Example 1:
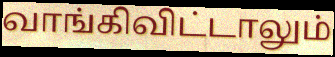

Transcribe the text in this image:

வாங்கிவிட்டாலும்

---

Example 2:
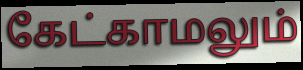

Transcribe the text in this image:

கேட்காமலும்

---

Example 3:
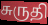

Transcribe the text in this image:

சுருதி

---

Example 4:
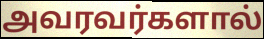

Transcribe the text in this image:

அவரவர்களால்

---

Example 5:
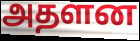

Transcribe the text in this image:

அதளன